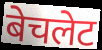
बेचलेट